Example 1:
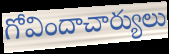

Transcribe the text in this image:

గోవిందాచార్యులు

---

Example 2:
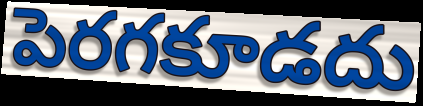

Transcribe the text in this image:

పెరగకూడదు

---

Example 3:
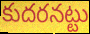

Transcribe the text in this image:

కుదరనట్టు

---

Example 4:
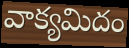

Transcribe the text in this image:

వాక్యమిదం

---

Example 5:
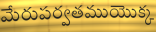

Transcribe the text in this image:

మేరుపర్వతముయొక్క